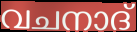
വചനാദ്